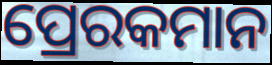
ପ୍ରେରକମାନ